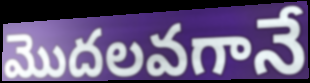
మొదలవగానే